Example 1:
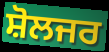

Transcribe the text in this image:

ਸ਼ੋਲਜਰ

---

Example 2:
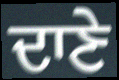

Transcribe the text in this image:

ਦਾਣੇ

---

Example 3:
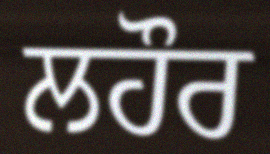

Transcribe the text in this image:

ਲਹੌਰ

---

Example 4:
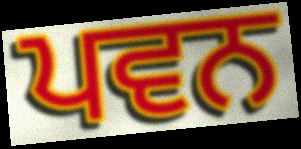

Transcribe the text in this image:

ਪਵਨ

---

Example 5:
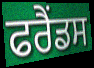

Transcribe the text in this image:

ਫਰੈਂਡਸ